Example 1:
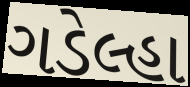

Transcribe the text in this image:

ગડેલ્હા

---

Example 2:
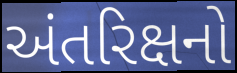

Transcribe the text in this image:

અંતરિક્ષનો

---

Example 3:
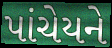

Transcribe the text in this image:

પાંચેયને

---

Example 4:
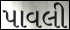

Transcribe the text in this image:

પાવલી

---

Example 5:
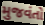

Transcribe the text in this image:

મુજવંતો